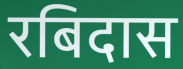
रबिदास